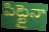
పిట్టైనా